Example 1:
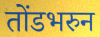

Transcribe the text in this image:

तोंडभरुन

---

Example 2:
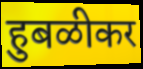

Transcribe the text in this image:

हुबळीकर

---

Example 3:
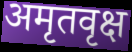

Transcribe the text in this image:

अमृतवृक्ष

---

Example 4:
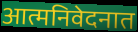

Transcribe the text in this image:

आत्मनिवेदनात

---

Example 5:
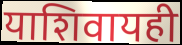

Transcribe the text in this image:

याशिवायही